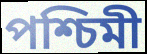
পশ্চিমী